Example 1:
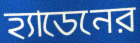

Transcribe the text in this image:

হ্যাডেনের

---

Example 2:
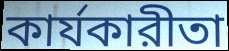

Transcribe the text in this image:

কার্যকারীতা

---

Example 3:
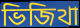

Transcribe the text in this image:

ভিজিথা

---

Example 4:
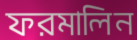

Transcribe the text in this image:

ফরমালিন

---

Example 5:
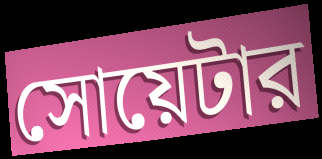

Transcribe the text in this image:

সোয়েটার